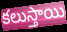
కలుస్తాయి